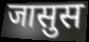
जासुस